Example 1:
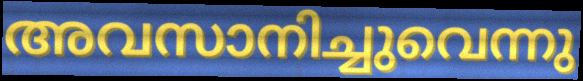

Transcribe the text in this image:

അവസാനിച്ചുവെന്നു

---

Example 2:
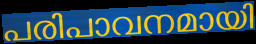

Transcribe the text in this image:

പരിപാവനമായി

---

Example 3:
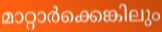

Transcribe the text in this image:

മാറ്റാർക്കെങ്കിലും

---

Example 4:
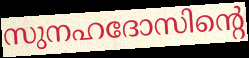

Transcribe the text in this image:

സുനഹദോസിന്റെ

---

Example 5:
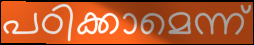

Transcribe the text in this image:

പഠിക്കാമെന്ന്